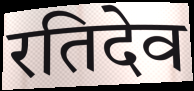
रतिदेव